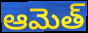
ఆమెత్